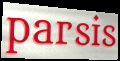
parsis